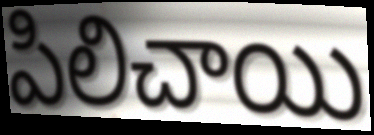
పిలిచాయి